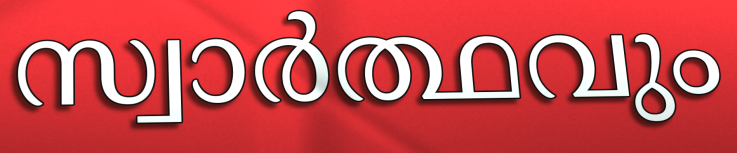
സ്വാർത്ഥവും